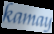
kamay